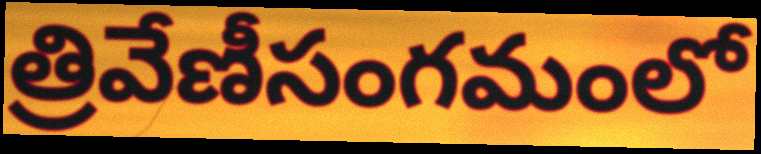
త్రివేణీసంగమంలో